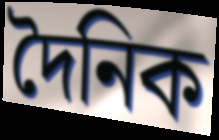
দৈনিক